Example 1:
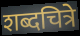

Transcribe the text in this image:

शब्दचित्रे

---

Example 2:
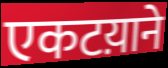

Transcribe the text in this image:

एकटय़ाने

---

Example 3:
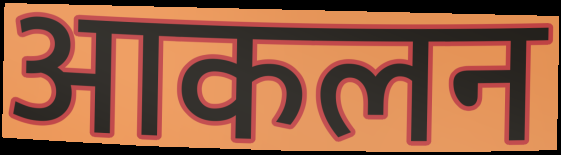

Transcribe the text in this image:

आकलन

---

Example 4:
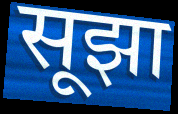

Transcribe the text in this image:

सूझा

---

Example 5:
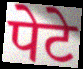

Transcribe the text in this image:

पेटे